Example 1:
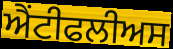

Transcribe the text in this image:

ਐਂਟੀਫਲੀਅਸ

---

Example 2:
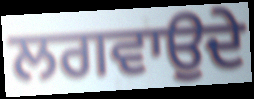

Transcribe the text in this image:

ਲਗਵਾਉਦੇ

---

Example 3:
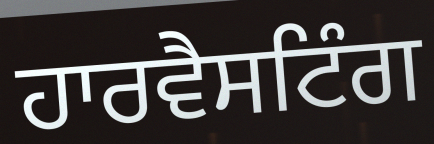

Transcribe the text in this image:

ਹਾਰਵੈਸਟਿੰਗ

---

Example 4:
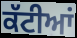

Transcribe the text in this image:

ਕੱਟੀਆਂ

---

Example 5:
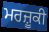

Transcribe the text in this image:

ਮਰਜ਼ੂਕੀ